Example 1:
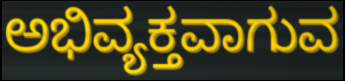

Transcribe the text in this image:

ಅಭಿವ್ಯಕ್ತವಾಗುವ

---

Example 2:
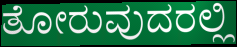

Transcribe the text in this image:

ತೋರುವುದರಲ್ಲಿ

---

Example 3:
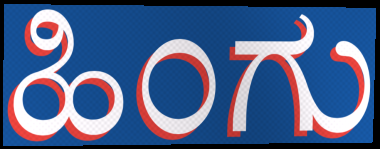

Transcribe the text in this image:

ಹಿಂಗು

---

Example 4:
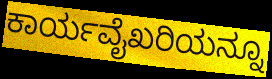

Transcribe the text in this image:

ಕಾರ್ಯವೈಖರಿಯನ್ನೂ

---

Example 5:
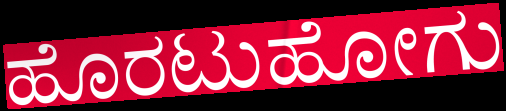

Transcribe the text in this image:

ಹೊರಟುಹೋಗು